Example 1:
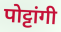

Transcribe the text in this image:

पोट्टांगी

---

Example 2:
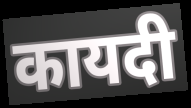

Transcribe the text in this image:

कायदी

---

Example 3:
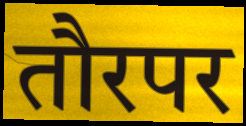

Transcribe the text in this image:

तौरपर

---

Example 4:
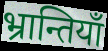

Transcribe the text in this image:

भ्रान्तियाँ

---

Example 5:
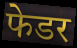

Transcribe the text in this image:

फेडर